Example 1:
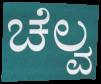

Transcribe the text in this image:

ಚೆಲ್ವ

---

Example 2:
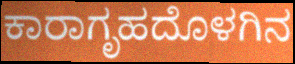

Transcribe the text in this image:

ಕಾರಾಗೃಹದೊಳಗಿನ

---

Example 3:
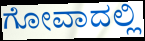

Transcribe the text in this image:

ಗೋವಾದಲ್ಲಿ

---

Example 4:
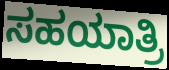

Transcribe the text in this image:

ಸಹಯಾತ್ರಿ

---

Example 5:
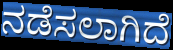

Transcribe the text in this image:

ನಡೆಸಲಾಗಿದೆ